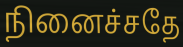
நினைச்சதே